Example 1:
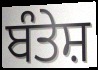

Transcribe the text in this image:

ਬੰਤੇਸ਼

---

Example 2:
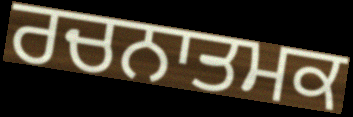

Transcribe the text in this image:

ਰਚਨਾਤਮਕ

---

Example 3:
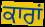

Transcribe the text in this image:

ਕਾਰਾਂ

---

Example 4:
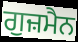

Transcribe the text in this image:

ਗੁਜ਼ਮੈਨ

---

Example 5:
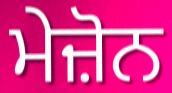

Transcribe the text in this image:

ਮੇਜ਼ੋਨ